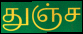
துஞ்ச